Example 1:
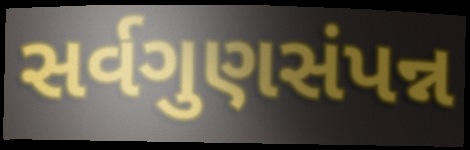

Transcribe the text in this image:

સર્વગુણસંપન્ન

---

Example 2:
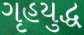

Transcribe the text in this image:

ગૃહયુદ્ધ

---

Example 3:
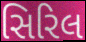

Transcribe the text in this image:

સિરિલ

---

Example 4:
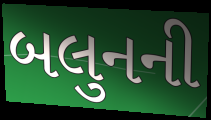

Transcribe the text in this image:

બલુનની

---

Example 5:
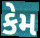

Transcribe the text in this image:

કેમ